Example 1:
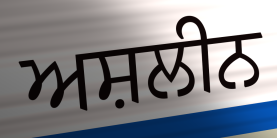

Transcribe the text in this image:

ਅਸ਼ਲੀਨ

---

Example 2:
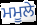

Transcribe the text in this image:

ਮਮੂਲੇ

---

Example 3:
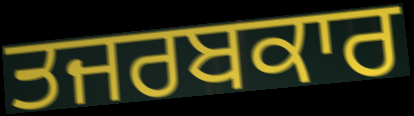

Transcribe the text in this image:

ਤਜਰਬਕਾਰ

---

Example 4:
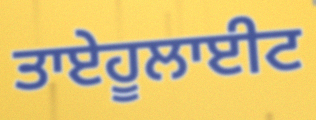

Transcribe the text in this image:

ਤਾਏਹੂਲਾਈਟ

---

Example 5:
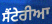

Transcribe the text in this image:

ਸੈਂਟੇਰੀਆ